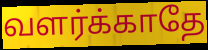
வளர்க்காதே